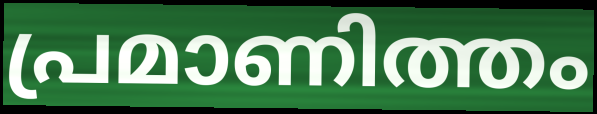
പ്രമാണിത്തം